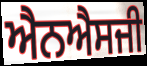
ਐਨਐਸਜੀ